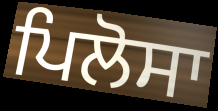
ਪਿਲੋਸਾ